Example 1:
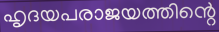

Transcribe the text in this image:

ഹൃദയപരാജയത്തിന്റെ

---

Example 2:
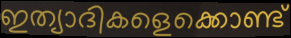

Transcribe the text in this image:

ഇത്യാദികളെക്കൊണ്ട്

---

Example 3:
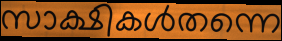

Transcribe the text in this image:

സാക്ഷികൾതന്നെ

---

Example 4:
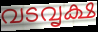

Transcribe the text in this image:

വടവൃക്ഷ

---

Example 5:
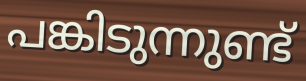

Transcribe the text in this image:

പങ്കിടുന്നുണ്ട്